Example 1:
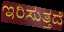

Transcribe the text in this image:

ಇರಿಸುತ್ತದೆ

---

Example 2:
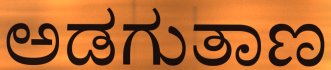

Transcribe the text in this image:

ಅಡಗುತಾಣ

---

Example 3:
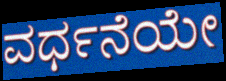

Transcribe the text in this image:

ವರ್ಧನೆಯೇ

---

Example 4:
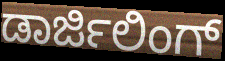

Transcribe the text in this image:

ಡಾರ್ಜಿಲಿಂಗ್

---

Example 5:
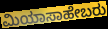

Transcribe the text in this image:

ಮಿಯಾಸಾಹೇಬರು